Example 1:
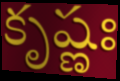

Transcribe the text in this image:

కృష్ణః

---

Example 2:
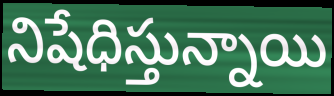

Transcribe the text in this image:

నిషేధిస్తున్నాయి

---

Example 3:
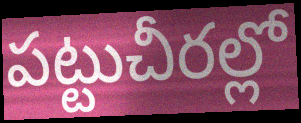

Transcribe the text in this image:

పట్టుచీరల్లో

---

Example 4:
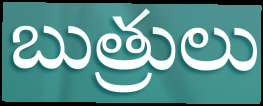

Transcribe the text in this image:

బుత్రులు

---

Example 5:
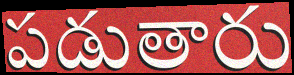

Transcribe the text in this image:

పడుతారు